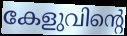
കേളുവിന്റെ